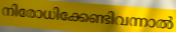
നിരോധിക്കേണ്ടിവന്നാൽ